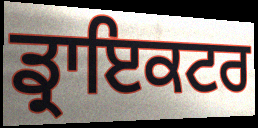
ਡ੍ਰਾਇਕਟਰ